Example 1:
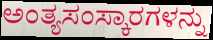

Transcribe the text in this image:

ಅಂತ್ಯಸಂಸ್ಕಾರಗಳನ್ನು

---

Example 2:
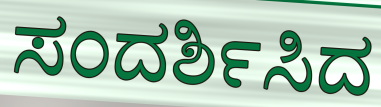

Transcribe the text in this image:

ಸಂದರ್ಶಿಸಿದ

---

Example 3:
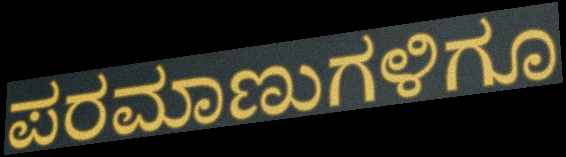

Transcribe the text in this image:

ಪರಮಾಣುಗಳಿಗೂ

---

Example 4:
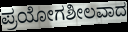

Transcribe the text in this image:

ಪ್ರಯೋಗಶೀಲವಾದ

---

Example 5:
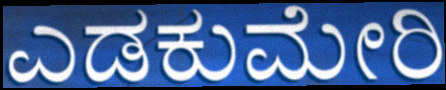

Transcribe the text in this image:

ಎಡಕುಮೇರಿ